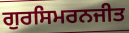
ਗੁਰਸਿਮਰਨਜੀਤ